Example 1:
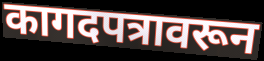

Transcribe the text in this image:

कागदपत्रावरून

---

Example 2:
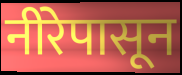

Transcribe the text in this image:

नीरेपासून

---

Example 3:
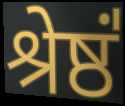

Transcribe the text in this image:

श्रेष्ठं॑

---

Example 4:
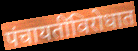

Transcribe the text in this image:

पंचायतींविरोधात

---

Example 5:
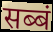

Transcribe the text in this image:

सब्बं